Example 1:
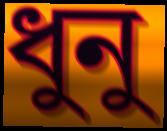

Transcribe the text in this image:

ধুনু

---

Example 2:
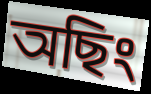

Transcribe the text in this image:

অছিং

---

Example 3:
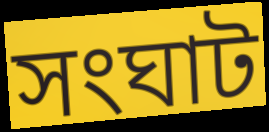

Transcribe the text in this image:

সংঘাট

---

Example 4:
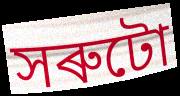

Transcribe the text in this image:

সৰুটো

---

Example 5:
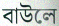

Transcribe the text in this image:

বাউলে